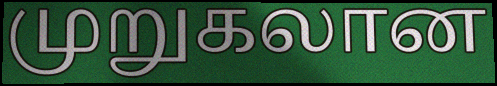
முறுகலான